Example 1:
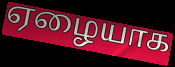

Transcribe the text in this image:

ஏழையாக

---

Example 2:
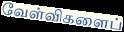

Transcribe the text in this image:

வேள்விகளைப்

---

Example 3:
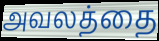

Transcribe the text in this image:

அவலத்தை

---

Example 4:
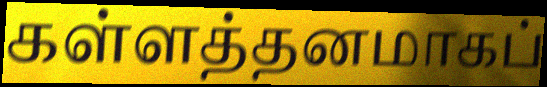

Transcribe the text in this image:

கள்ளத்தனமாகப்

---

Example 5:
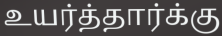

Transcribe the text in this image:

உயர்த்தார்க்கு